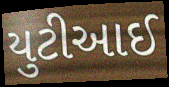
યુટીઆઈ